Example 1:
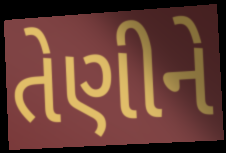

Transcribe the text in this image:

તેણીને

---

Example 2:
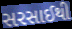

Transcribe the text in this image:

સરસાઈથી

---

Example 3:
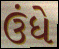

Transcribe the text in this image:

ઉંધે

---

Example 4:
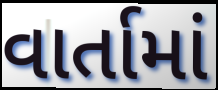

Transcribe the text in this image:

વાર્તામાં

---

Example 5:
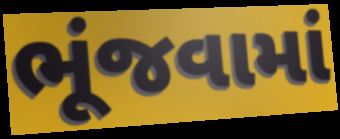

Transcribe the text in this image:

ભૂંજવામાં